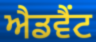
ਐਡਵੈਂਟ